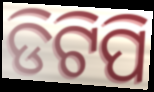
ଡିଟିପି